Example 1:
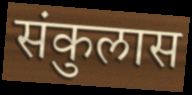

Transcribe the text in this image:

संकुलास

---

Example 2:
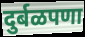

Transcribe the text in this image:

दुर्बळपणा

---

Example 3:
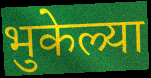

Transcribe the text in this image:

भुकेल्या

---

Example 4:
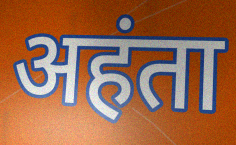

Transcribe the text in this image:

अहंता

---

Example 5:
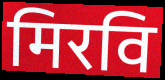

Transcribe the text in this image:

मिरवि